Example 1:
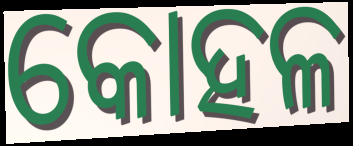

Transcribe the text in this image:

କୋହଳ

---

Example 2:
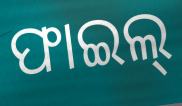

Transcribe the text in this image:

ଫାଇଲ୍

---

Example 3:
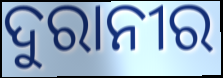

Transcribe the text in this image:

ଦୁରାନୀର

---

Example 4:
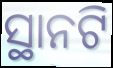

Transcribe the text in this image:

ସ୍ଥାନଟି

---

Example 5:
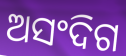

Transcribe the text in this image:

ଅସଂଦିଗ